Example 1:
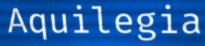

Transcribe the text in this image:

Aquilegia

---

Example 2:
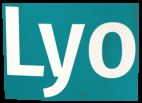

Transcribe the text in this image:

Lyo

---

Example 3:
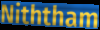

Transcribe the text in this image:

Niththam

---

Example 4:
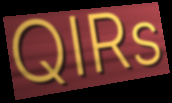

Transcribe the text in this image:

QIRs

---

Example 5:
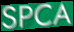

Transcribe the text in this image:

SPCA